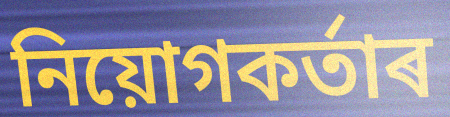
নিয়োগকৰ্তাৰ